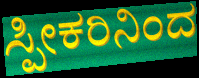
ಸ್ಪೀಕರಿನಿಂದ